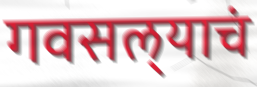
गवसल्याचं